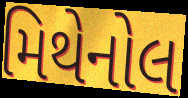
મિથેનોલ